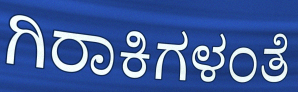
ಗಿರಾಕಿಗಳಂತೆ